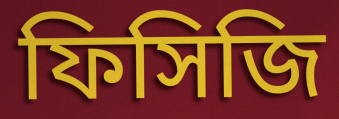
ফিসিজি